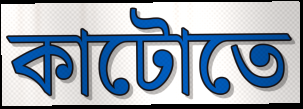
কাটোতে